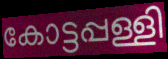
കോട്ടപ്പള്ളി